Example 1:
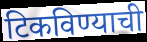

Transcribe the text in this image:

टिकविण्याची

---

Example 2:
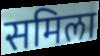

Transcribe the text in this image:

समिला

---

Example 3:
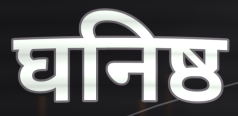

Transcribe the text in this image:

घनिष्ठ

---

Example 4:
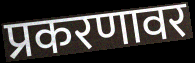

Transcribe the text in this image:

प्रकरणावर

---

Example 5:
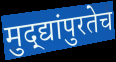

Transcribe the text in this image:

मुद्द्यांपुरतेच